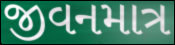
જીવનમાત્ર